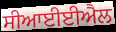
ਸੀਆਈਈਐਲ